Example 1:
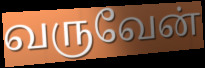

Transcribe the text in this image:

வருவேன்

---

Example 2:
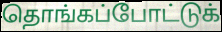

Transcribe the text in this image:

தொங்கப்போட்டுக்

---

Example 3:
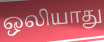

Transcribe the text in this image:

ஒலியாது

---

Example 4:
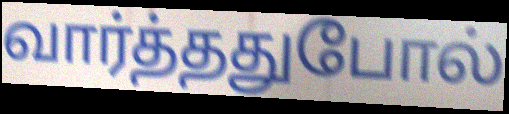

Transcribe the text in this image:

வார்த்ததுபோல்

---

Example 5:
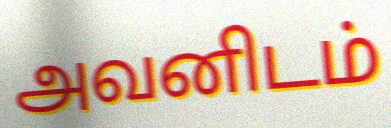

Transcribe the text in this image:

அவனிடம்